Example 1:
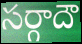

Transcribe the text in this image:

సర్గాదౌ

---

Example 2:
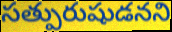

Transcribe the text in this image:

సత్పురుషుడనని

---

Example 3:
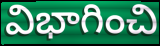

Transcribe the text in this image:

విభాగించి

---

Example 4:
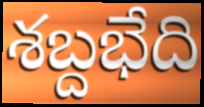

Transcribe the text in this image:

శబ్దభేది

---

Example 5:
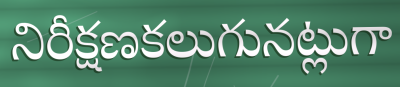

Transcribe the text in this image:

నిరీక్షణకలుగునట్లుగా